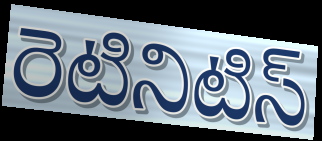
రెటినిటిస్